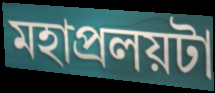
মহাপ্রলয়টা